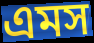
এমস